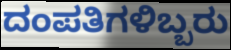
ದಂಪತಿಗಳಿಬ್ಬರು